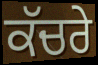
ਕੱਚਰੇ